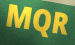
MQR